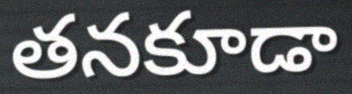
తనకూడా